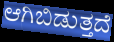
ಆಗಿಬಿಡುತ್ತದೆ